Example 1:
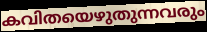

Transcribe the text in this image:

കവിതയെഴുതുന്നവരും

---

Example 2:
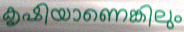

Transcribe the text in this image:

കൃഷിയാണെങ്കിലും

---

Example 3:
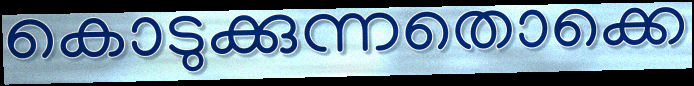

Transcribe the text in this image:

കൊടുക്കുന്നതൊക്കെ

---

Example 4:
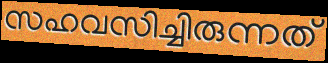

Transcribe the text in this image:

സഹവസിച്ചിരുന്നത്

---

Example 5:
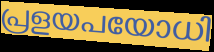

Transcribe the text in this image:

പ്രളയപയോധി